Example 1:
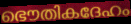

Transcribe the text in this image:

ഭൌതികദേഹം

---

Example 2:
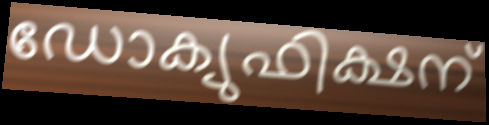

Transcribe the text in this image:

ഡോക്യുഫിക്ഷന്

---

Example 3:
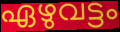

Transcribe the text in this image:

ഏഴുവട്ടം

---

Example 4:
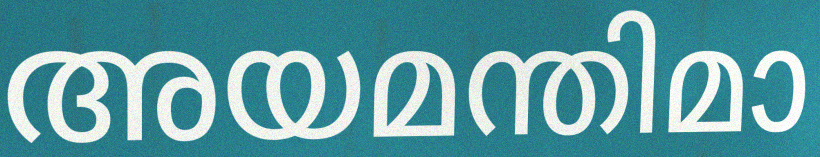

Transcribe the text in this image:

അയമന്തിമാ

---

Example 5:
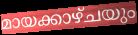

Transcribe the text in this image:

മായക്കാഴ്ചയും